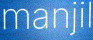
manjil